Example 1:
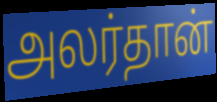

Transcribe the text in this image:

அலர்தான்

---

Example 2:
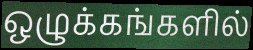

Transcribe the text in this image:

ஒழுக்கங்களில்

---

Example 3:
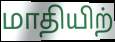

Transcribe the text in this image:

மாதியிற்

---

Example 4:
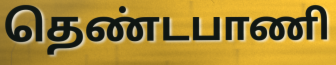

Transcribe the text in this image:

தெண்டபாணி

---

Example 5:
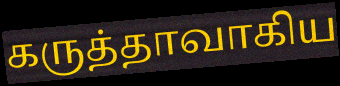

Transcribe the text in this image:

கருத்தாவாகிய